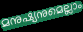
മനുഷ്യനുമെല്ലാം